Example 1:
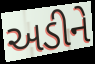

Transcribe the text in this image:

અડીને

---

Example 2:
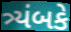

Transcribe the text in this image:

ત્ર્યંબકે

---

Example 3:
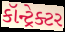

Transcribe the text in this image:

કૉન્ટ્રેક્ટર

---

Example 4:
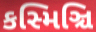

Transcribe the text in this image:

કસ્મિઞ્ચિ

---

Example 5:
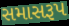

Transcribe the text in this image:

સમાસરૂપ